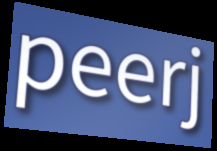
peerj